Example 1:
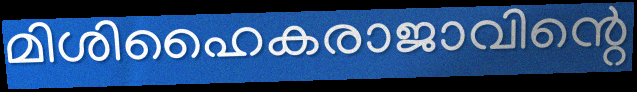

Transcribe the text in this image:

മിശിഹൈകരാജാവിന്റെ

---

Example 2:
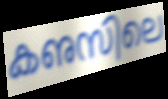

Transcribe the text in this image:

കഌസിലെ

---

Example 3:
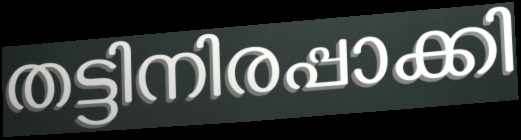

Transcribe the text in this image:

തട്ടിനിരപ്പാക്കി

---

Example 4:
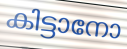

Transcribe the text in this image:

കിട്ടാനോ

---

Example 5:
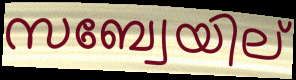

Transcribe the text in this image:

സബ്വേയില്